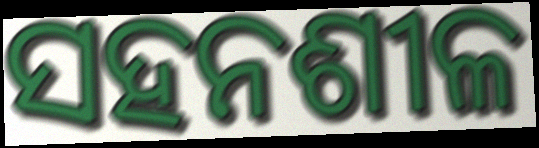
ସହନଶୀଳ